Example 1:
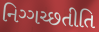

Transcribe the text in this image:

નિગ્ગચ્છતીતિ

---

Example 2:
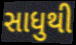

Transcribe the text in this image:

સાધુથી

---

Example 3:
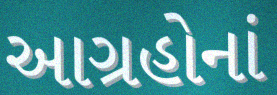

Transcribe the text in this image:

આગ્રહોનાં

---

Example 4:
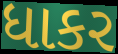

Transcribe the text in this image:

ધાકર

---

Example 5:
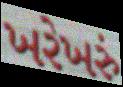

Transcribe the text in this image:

ખરેખરું